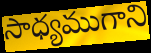
సాధ్యముగాని